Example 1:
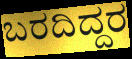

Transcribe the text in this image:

ಬರದಿದ್ದರ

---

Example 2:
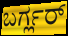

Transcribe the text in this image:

ಬರ್ಗ್ಲರ್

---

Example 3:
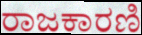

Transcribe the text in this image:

ರಾಜಕಾರಣಿ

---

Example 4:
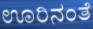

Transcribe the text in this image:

ಊರಿನಂತೆ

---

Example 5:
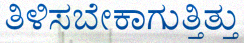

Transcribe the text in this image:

ತಿಳಿಸಬೇಕಾಗುತ್ತಿತ್ತು